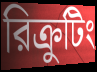
রিক্রুটিং